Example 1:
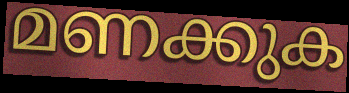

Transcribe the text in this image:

മണക്കുക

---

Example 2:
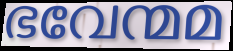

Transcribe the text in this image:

ഭവേന്മമ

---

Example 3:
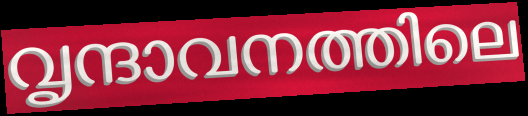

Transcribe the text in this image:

വൃന്ദാവനത്തിലെ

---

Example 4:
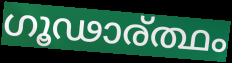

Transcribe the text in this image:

ഗൂഢാര്ത്ഥം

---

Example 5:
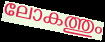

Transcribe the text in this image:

ലോകത്തും